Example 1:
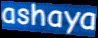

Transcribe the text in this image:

ashaya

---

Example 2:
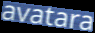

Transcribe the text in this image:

avatara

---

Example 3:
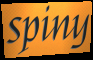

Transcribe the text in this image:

spiny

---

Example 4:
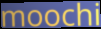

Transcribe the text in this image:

moochi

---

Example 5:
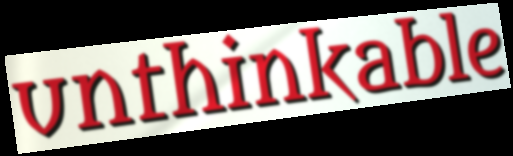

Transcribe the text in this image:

unthinkable